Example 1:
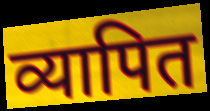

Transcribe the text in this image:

व्यापित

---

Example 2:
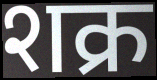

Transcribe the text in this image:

शक्र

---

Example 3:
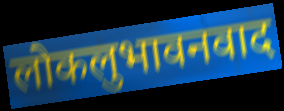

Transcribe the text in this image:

लोकलुभावनवाद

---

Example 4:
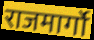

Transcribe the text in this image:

राजमार्गो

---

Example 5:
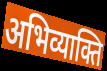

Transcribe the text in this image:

अभिव्याक्ति